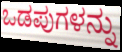
ಒಡಪುಗಳನ್ನು